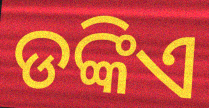
ଡଙ୍କିଏ